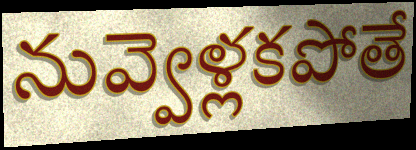
నువ్వెళ్లకపోతే